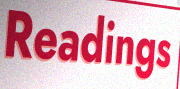
Readings